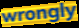
wrongly